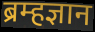
ब्रम्हज्ञान